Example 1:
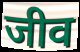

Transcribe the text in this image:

जीव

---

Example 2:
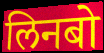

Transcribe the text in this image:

लिनबो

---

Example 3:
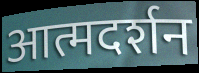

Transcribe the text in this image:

आत्मदर्शन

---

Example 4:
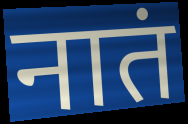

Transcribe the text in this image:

नातं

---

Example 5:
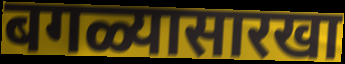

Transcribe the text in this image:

बगळ्यासारखा